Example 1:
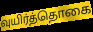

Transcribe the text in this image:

வுயிர்த்தொகை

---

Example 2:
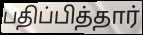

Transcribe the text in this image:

பதிப்பித்தார்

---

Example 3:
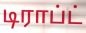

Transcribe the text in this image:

டிராப்ட்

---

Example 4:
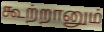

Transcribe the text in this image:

கூற்றானும்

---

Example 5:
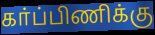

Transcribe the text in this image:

கர்ப்பிணிக்கு